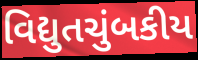
વિદ્યુતચુંબકીય